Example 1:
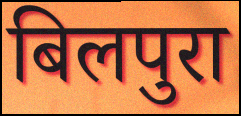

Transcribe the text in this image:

बिलपुरा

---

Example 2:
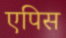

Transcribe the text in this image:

एपिस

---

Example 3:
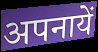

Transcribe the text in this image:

अपनायें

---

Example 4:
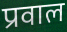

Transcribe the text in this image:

प्रवाल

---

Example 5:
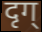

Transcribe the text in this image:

दृग्